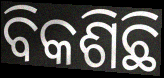
ବିକଶିଛି